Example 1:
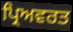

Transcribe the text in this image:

ਪ੍ਰਿਅਵਰਤ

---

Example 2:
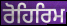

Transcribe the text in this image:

ਰੋਹਿਰਿਮ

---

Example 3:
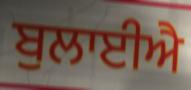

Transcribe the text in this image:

ਬੁਲਾਈਐ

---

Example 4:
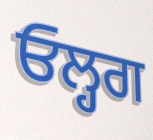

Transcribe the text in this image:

ਓਲ੍ਹਗ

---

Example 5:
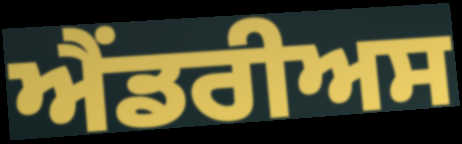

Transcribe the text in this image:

ਐਂਡਰੀਅਸ